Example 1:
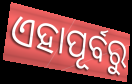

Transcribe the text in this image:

ଏହାପୂର୍ବରୁ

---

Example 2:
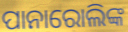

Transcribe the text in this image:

ପାନାରୋଲିଙ୍କ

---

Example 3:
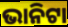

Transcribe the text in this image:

ଭାନିଟା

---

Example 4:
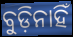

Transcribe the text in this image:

ବୁଡ଼ିନାହିଁ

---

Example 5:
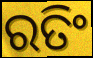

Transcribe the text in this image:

ରତିଂ